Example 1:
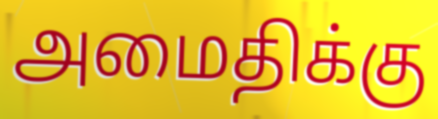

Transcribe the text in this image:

அமைதிக்கு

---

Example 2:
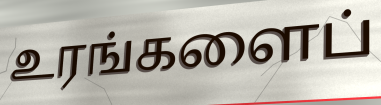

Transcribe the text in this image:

உரங்களைப்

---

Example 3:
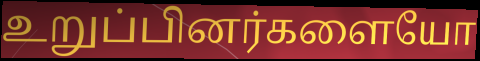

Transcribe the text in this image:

உறுப்பினர்களையோ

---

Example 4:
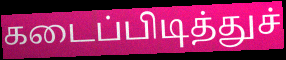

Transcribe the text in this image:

கடைப்பிடித்துச்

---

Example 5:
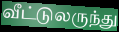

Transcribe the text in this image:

வீட்டுலருந்து